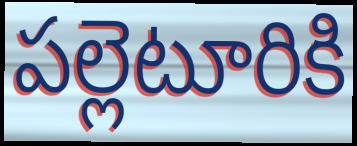
పల్లెటూరికి